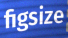
figsize